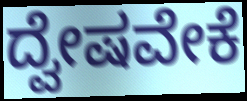
ದ್ವೇಷವೇಕೆ